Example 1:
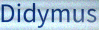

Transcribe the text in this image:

Didymus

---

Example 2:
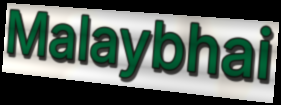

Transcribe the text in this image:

Malaybhai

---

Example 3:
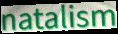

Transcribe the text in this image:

natalism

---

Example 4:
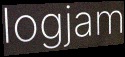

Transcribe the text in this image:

logjam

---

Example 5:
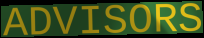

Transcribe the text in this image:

ADVISORS